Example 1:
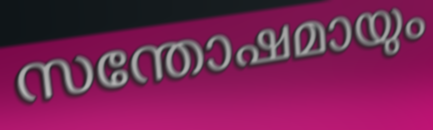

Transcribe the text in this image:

സന്തോഷമായും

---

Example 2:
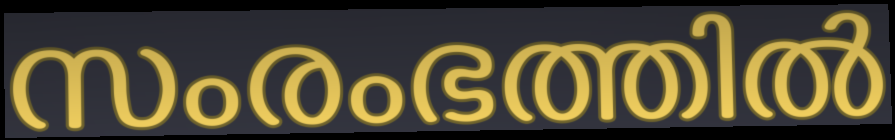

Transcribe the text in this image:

സംരംഭത്തിൽ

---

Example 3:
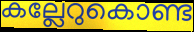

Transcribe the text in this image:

കല്ലേറുകൊണ്ട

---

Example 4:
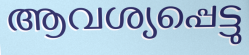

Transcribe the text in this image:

ആവശ്യപ്പെട്ടു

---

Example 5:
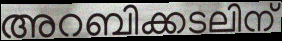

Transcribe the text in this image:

അറബിക്കടലിന്